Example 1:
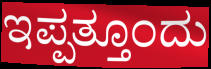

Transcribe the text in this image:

ಇಪ್ಪತ್ತೂಂದು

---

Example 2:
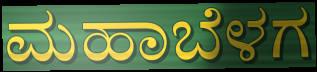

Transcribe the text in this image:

ಮಹಾಬೆಳಗ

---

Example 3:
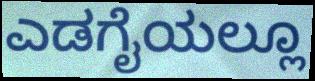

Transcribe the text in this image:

ಎಡಗೈಯಲ್ಲೂ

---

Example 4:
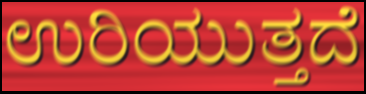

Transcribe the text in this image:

ಉರಿಯುತ್ತದೆ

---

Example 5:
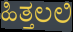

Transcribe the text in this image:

ಹಿತ್ತಲಲಿ